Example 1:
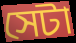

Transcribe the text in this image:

সেটা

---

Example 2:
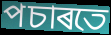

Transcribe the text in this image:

পচাৰতে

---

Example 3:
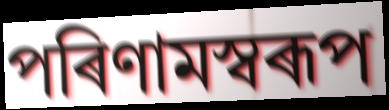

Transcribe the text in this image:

পৰিণামস্বৰূপ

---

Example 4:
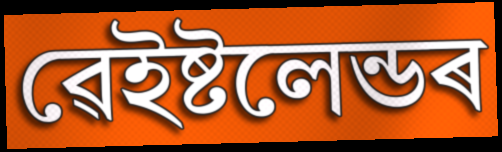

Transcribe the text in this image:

ৱেইষ্টলেন্ডৰ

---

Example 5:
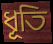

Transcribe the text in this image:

ধূতি